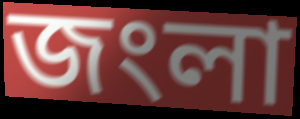
জংলা